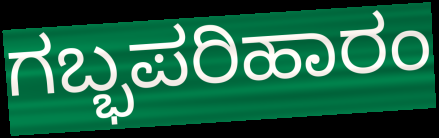
ಗಬ್ಭಪರಿಹಾರಂ